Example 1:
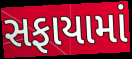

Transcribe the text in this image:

સફાયામાં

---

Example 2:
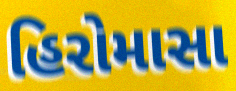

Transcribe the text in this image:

હિરોમાસા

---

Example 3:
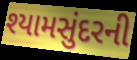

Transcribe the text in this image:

શ્યામસુંદરની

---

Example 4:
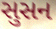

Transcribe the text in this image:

સુસન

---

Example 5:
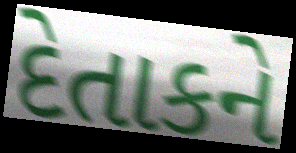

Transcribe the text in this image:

દેતાકને